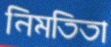
নিমতিতা